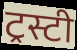
ट्रस्टी